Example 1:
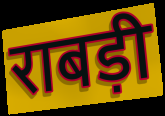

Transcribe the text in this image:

राबड़ी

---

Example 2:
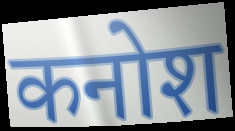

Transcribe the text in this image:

कनोश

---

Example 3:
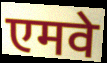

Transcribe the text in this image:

एमवे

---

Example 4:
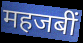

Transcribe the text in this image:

महजबीं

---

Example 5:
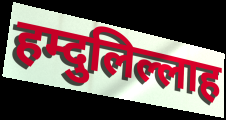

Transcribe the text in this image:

हम्दुलिल्लाह